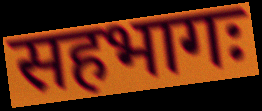
सहभागः